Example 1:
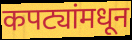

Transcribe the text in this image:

कपट्यांमधून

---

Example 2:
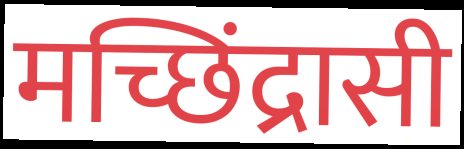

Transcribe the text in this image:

मच्छिंद्रासी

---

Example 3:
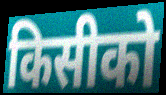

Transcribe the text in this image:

किसीको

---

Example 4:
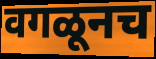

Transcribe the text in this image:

वगळूनच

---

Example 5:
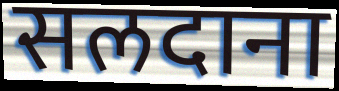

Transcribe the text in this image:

सलदाना